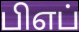
பிஎப்